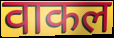
वाकल